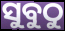
ସୁବୁଠୁ